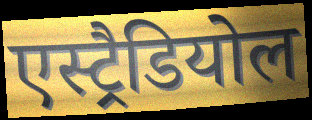
एस्ट्रैडियोल